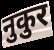
नुकुर